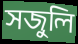
সজুলি